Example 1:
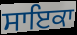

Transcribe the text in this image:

ਸਾਇਕਾ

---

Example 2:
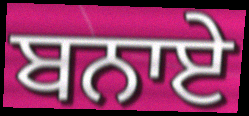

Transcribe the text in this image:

ਬਨਾਏ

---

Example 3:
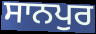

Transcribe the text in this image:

ਸਾਨਪੁਰ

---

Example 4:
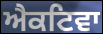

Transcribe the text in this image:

ਐਕਟਿਵਾ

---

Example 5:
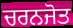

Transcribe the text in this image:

ਚਰਨਜੋਤ